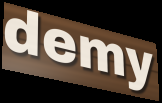
demy